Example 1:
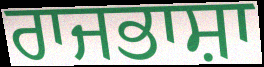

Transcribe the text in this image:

ਰਾਜਭਾਸ਼ਾ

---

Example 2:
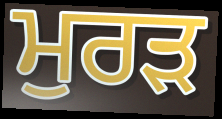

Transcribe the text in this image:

ਮੁਰੜ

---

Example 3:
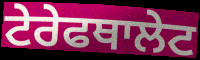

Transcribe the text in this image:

ਟੇਰੇਫਥਾਲੇਟ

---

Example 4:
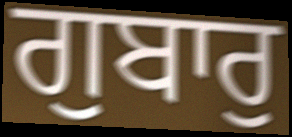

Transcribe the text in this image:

ਗੁਬਾਰੁ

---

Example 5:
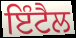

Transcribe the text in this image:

ਇੰਟੈਲ